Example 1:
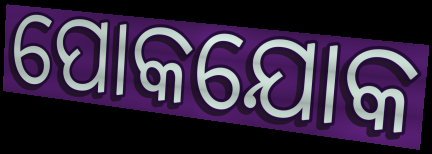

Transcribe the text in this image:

ପୋକଯୋକ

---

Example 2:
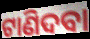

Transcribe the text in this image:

ଟାଣିଦବା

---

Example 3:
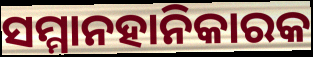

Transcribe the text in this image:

ସମ୍ମାନହାନିକାରକ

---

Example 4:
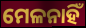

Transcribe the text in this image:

ମେଳନାହିଁ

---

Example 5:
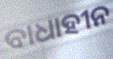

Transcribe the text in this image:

ବାଧାହୀନ